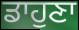
ਡਾਹੁਣਾ